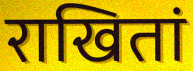
राखितां